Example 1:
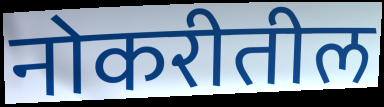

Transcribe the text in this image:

नोकरीतील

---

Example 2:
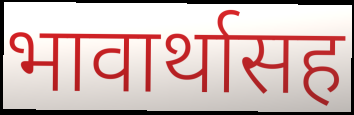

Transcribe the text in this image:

भावार्थासह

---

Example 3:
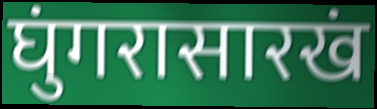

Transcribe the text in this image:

घुंगरासारखं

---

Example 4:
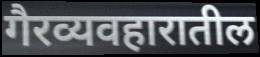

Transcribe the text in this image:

गैरव्यवहारातील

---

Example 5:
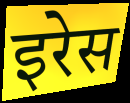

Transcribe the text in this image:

इरेस